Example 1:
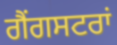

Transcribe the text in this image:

ਗੈਂਗਸਟਰਾਂ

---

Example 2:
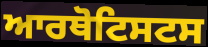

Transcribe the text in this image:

ਆਰਥੋਟਿਸਟਸ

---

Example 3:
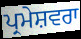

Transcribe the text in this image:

ਪ੍ਰਮੇਸ਼ਵਰਾ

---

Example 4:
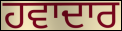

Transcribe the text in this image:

ਹਵਾਦਾਰ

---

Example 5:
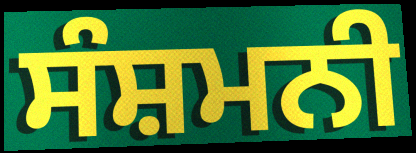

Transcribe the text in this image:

ਸੰਸ਼ਮਨੀ